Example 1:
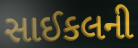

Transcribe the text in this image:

સાઈકલની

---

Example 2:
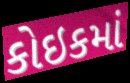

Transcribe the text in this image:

કોઇકમાં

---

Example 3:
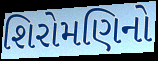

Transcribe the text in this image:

શિરોમણિનો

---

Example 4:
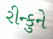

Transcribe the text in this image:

રીન્કુને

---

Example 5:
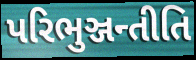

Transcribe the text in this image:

પરિભુઞ્જન્તીતિ